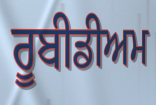
ਰੂਬੀਡੀਅਮ